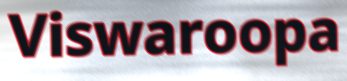
Viswaroopa